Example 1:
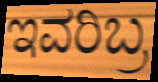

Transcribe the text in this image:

ಇವರಿಬ್ರ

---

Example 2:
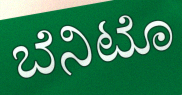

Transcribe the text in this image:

ಬೆನಿಟೊ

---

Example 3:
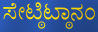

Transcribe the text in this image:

ಸೇಟ್ಠಿಟ್ಠಾನಂ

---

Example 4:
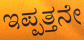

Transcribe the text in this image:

ಇಪ್ಪತ್ತನೇ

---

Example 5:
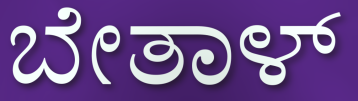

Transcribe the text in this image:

ಬೇತಾಳ್